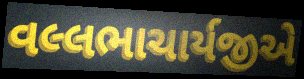
વલ્લભાચાર્યજીએ